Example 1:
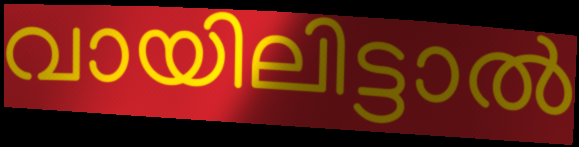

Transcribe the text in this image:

വായിലിട്ടാൽ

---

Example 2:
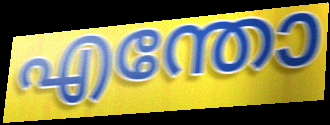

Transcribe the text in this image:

എന്തോ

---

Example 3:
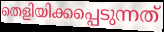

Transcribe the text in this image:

തെളിയിക്കപ്പെടുന്നത്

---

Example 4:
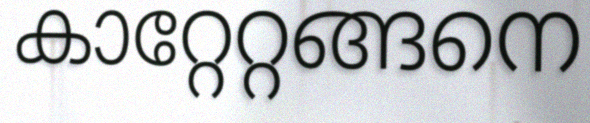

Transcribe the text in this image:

കാറ്റേറ്റങ്ങനെ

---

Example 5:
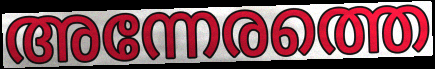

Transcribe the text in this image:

അന്നേരത്തെ